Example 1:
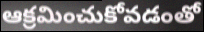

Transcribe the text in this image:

ఆక్రమించుకోవడంతో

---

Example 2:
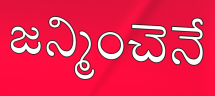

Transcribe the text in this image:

జన్మించెనే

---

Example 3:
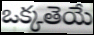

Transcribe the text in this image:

ఒక్కతెయే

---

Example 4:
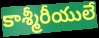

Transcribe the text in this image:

కాశ్మీరీయులే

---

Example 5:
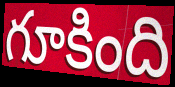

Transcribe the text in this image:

గూకింది